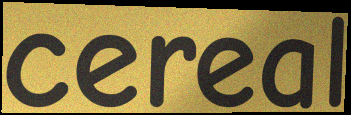
cereal